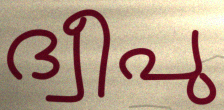
ദ്വീപു